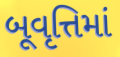
બૂવૃત્તિમાં